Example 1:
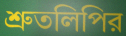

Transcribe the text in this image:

শ্রুতলিপির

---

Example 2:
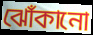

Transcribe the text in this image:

ঝোঁকানো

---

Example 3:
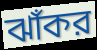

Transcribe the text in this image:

ঝাঁকর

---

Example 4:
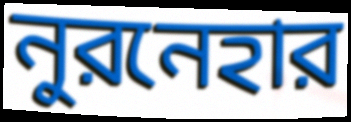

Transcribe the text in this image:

নুরনেহার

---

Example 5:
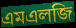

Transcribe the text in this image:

এমএলজি